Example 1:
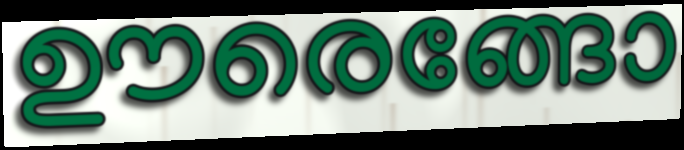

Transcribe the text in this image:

ഊരെങ്ങോ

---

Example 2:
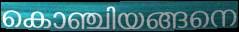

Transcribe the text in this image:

കൊഞ്ചിയങ്ങനെ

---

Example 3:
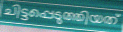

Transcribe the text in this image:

ചിട്ടപ്പെടുത്തിയത്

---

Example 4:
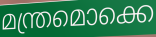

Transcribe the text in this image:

മന്ത്രമൊക്കെ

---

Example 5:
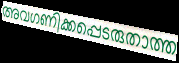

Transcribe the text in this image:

അവഗണിക്കപ്പെടരുതാത്ത